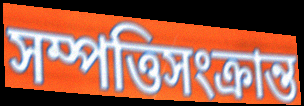
সম্পত্তিসংক্রান্ত